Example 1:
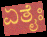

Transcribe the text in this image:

ಏತೈಃ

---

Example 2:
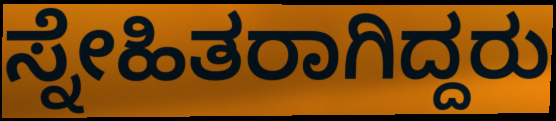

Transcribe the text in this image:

ಸ್ನೇಹಿತರಾಗಿದ್ದರು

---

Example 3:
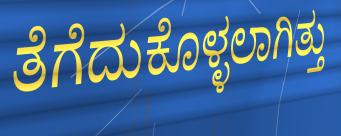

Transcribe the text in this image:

ತೆಗೆದುಕೊಳ್ಳಲಾಗಿತ್ತು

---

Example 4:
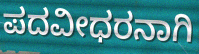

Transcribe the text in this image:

ಪದವೀಧರನಾಗಿ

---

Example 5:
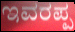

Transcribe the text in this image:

ಇವರಪ್ಪ